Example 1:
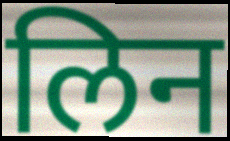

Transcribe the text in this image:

लिन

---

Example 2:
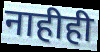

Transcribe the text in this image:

नाहीही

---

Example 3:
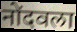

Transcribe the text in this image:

नोंदवला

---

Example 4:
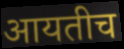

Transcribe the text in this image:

आयतीच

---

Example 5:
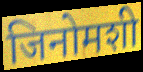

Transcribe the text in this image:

जिनोमशी